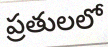
ప్రతులలో